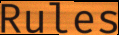
Rules